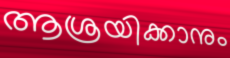
ആശ്രയിക്കാനും